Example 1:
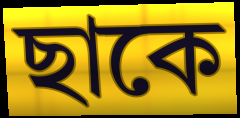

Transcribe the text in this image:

ছাকে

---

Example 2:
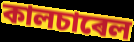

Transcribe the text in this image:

কালচাৰেল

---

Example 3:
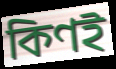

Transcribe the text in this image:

কিণই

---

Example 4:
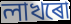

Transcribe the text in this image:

লাখৰো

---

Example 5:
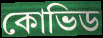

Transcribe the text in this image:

কোভিড